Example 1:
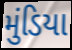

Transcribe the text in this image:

મુંડિયા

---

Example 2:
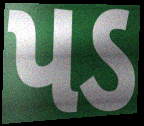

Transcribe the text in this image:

પડ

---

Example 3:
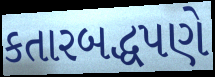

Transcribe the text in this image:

કતારબદ્ધપણે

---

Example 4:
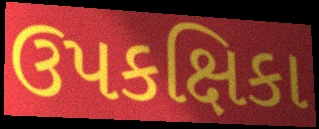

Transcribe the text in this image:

ઉપકક્ષિકા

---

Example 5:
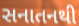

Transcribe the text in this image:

સનાતનથી